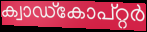
ക്വാഡ്കോപ്റ്റർ